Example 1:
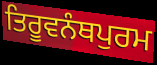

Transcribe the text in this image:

ਤਿਰੂਵਨੰਥਪੁਰਮ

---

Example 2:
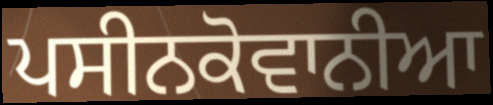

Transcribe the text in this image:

ਪਸੀਨਕੋਵਾਨੀਆ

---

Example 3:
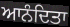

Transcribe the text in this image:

ਆਨੰਦਿਤਾ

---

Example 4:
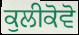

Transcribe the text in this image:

ਕੁਲੀਕੋਵੋ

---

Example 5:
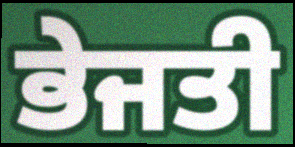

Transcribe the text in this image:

ਭੇਜਤੀ